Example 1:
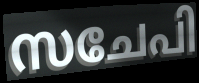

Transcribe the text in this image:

സചേപി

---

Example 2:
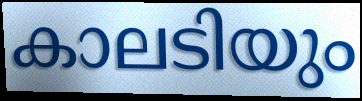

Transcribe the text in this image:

കാലടിയും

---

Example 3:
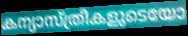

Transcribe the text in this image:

കന്യാസ്ത്രീകളുടെയോ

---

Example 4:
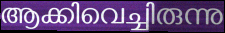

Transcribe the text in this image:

ആക്കിവെച്ചിരുന്നു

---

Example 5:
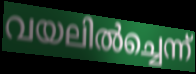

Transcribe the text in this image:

വയലിൽച്ചെന്ന്